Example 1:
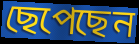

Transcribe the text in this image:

ছেপেছেন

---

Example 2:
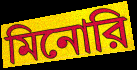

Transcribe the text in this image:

মিনোরি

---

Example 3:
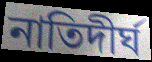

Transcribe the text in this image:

নাতিদীর্ঘ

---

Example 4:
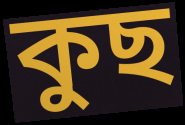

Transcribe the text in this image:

কুছ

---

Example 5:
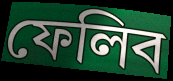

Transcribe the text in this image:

ফেলিব